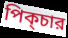
পিক্চার